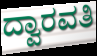
ದ್ವಾರವತಿ